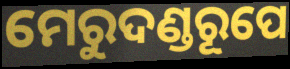
ମେରୁଦଣ୍ଡରୂପେ